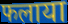
फलाया